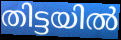
തിട്ടയിൽ